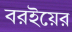
বরইয়ের